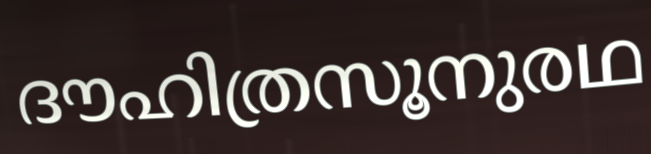
ദൗഹിത്രസൂനുരഥ